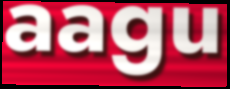
aagu